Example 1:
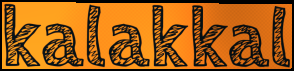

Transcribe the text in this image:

kalakkal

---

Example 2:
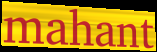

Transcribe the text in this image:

mahant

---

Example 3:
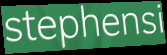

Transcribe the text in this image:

stephensi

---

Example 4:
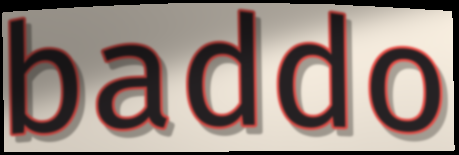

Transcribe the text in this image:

baddo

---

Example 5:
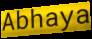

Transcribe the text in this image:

Abhaya